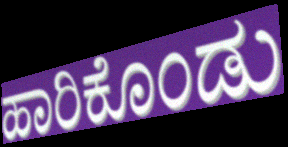
ಹಾರಿಕೊಂಡು